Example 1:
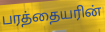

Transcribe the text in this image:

பரத்தையரின்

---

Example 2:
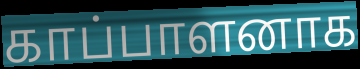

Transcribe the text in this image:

காப்பாளனாக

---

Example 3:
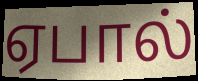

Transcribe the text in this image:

ஏபால்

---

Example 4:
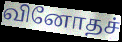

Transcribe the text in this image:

வினோதச்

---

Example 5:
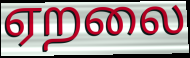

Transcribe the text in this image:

ஏறலை